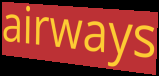
airways